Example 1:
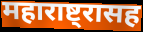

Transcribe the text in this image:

महाराष्ट्रासह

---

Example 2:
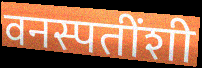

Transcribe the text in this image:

वनस्पतींशी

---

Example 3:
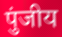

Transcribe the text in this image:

पुंजीय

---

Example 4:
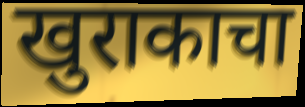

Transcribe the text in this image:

खुराकाचा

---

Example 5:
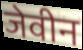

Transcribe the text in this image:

जेवीन